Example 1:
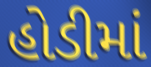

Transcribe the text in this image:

હોડીમાં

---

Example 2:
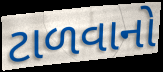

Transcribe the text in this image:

ટાળવાનો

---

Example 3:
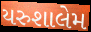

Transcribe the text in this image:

યરુશાલેમ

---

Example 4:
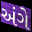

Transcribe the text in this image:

અંગે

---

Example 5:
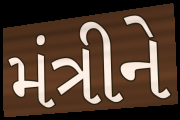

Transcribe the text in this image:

મંત્રીને